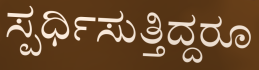
ಸ್ಪರ್ಧಿಸುತ್ತಿದ್ದರೂ